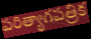
పరిత్యాగపత్రిక